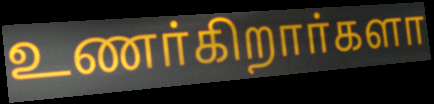
உணர்கிறார்களா